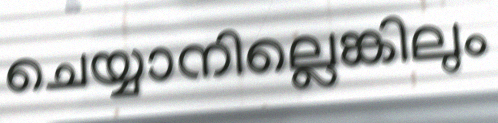
ചെയ്യാനില്ലെങ്കിലും